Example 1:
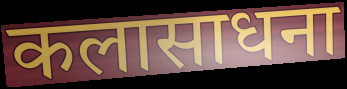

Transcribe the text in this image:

कलासाधना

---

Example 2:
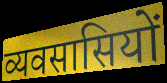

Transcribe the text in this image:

व्यवसासियों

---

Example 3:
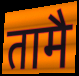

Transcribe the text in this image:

तामै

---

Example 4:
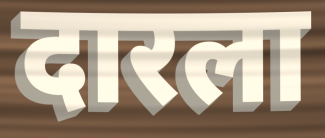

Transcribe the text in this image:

दारला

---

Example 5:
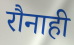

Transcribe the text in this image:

रौनाही